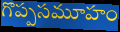
గొప్పసమూహం